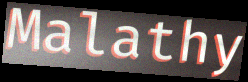
Malathy